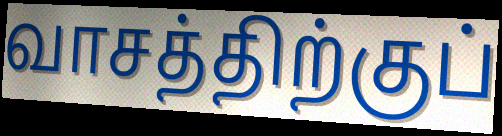
வாசத்திற்குப்